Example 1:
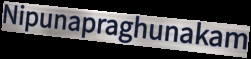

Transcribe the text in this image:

Nipunapraghunakam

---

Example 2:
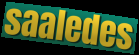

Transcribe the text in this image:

saaledes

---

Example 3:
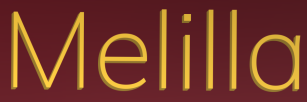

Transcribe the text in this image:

Melilla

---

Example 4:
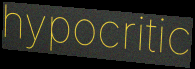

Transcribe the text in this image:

hypocritic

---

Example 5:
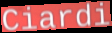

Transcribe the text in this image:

Ciardi